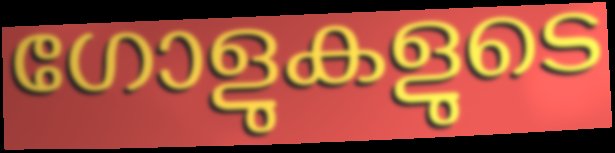
ഗോളുകളുടെ